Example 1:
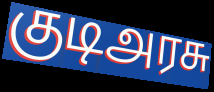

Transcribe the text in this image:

குடிஅரசு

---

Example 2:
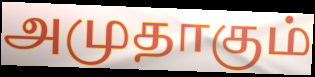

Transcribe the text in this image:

அமுதாகும்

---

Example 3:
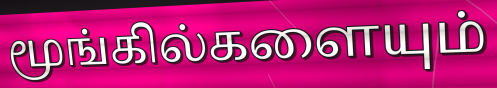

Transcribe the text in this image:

மூங்கில்களையும்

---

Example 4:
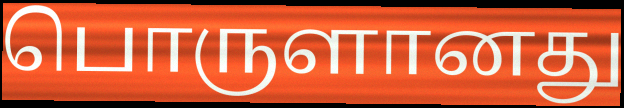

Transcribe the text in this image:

பொருளானது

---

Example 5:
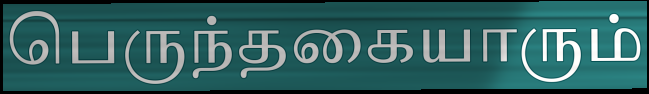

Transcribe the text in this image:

பெருந்தகையாரும்